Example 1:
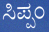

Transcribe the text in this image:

ಸಿಪ್ಪಂ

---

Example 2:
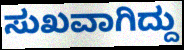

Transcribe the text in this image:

ಸುಖವಾಗಿದ್ದು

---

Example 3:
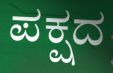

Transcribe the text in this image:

ಪಕ್ಷದ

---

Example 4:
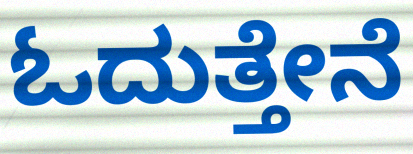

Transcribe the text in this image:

ಓದುತ್ತೇನೆ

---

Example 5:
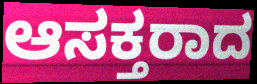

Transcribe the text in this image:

ಆಸಕ್ತರಾದ